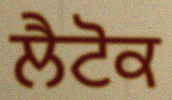
ਲੈਟੋਕ